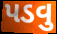
પડવુ